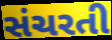
સંચરતી